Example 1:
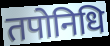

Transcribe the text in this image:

तपोनिधि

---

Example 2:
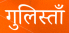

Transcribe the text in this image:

गुलिस्ताँ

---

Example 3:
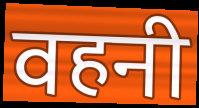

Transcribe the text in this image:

वहनी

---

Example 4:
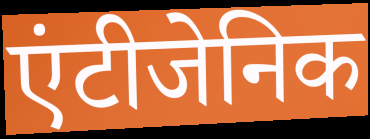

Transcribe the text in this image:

एंटीजेनिक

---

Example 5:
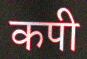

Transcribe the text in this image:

कपी